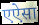
एऐसा